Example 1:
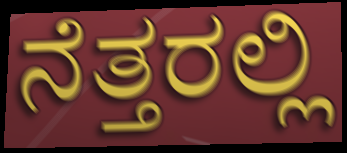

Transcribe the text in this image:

ನೆತ್ತರಲ್ಲಿ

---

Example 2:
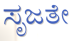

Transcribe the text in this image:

ಸೃಜತೇ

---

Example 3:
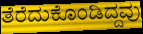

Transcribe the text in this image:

ತೆರೆದುಕೊಂಡಿದ್ದವು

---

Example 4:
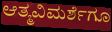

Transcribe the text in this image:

ಆತ್ಮವಿಮರ್ಶೆಗೂ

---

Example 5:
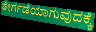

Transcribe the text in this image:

ತೇರ್ಗಡೆಯಾಗುವುದಕ್ಕೆ